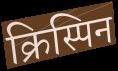
क्रिस्पिन